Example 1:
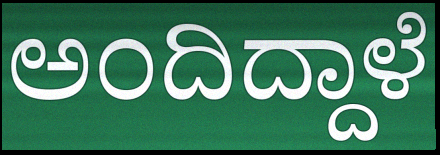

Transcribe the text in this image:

ಅಂದಿದ್ದಾಳೆ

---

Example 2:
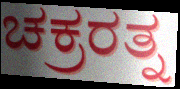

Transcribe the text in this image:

ಚಕ್ರರತ್ನ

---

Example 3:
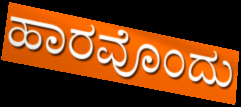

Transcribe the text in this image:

ಹಾರವೊಂದು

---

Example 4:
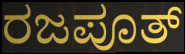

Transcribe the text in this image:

ರಜಪೂತ್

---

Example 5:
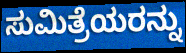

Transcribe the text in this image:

ಸುಮಿತ್ರೆಯರನ್ನು